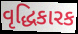
વૃદ્ધિકારક